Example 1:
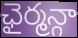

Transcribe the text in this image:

ఛైర్మన్గా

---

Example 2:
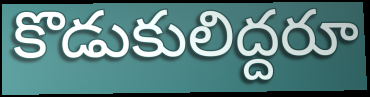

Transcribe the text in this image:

కొడుకులిద్దరూ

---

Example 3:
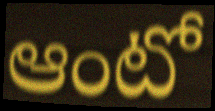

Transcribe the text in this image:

ఆంటో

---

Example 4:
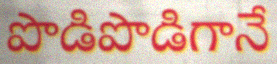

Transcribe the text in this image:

పొడిపొడిగానే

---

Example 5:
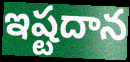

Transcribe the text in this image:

ఇష్టదాన